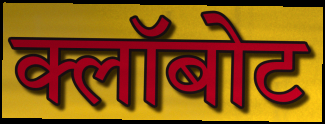
क्लॉबोट